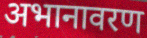
अभानावरण